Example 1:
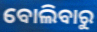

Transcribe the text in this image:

ବୋଲିବାରୁ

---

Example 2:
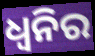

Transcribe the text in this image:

ଧ୍ବନିର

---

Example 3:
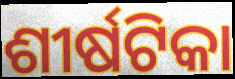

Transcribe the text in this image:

ଶୀର୍ଷଟିକା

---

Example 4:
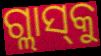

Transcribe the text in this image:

ଗ୍ଲାସ୍‌କୁ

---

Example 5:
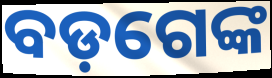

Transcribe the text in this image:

ବଡ଼ଗେଙ୍କ